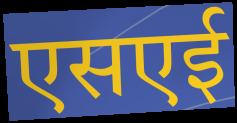
एसएई